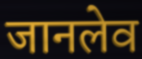
जानलेव